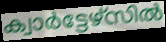
ക്വാർട്ടേഴ്സിൽ